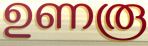
ഉണരൂ